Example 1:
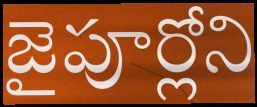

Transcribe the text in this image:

జైపూర్లోని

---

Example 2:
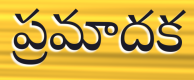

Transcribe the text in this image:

ప్రమాదక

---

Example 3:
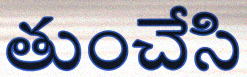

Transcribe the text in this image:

తుంచేసి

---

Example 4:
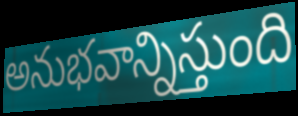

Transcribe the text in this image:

అనుభవాన్నిస్తుంది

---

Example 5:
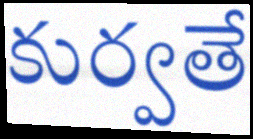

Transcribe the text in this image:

కుర్వతే